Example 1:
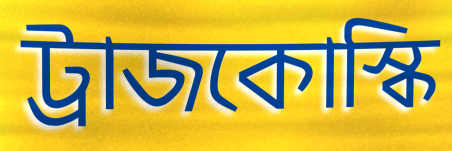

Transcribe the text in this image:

ট্রাজকোস্কি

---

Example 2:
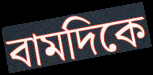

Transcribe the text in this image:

বামদিকে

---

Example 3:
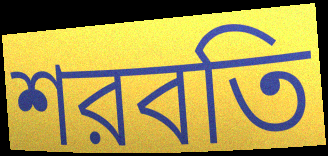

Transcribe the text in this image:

শরবতি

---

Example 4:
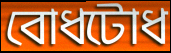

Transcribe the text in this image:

বোধটোধ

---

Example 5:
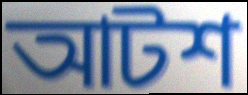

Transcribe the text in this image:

আটশ